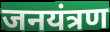
जनयंत्रण